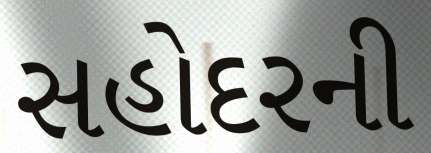
સહોદરની